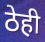
ठेही